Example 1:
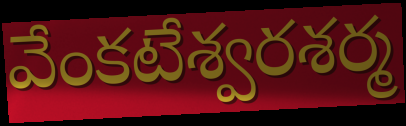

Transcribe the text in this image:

వేంకటేశ్వరశర్మ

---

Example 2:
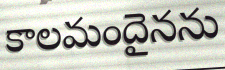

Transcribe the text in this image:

కాలమందైనను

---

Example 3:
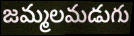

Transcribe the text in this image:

జమ్మలమడుగు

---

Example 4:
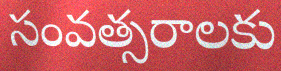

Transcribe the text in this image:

సంవత్సరాలకు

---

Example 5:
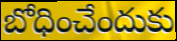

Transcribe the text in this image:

బోధించేందుకు